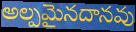
అల్పమైనదానవు